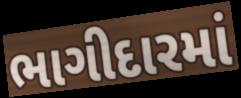
ભાગીદારમાં